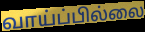
வாய்ப்பில்லை